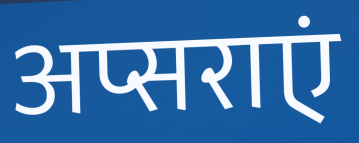
अप्सराएं